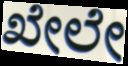
ಖೇಲೇ